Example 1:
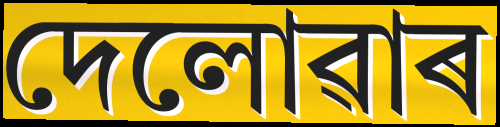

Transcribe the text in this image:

দেলোৱাৰ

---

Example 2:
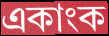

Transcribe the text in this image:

একাংক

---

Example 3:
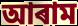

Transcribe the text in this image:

আৰাম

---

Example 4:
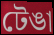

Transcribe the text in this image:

টেঙা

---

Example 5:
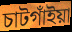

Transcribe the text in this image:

চাটগাঁইয়া